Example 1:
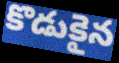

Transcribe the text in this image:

కొడుకైన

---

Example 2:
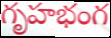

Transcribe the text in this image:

గృహభంగ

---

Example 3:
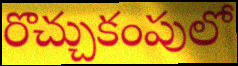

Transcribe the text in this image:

రొచ్చుకంపులో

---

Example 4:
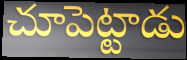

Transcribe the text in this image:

చూపెట్టాడు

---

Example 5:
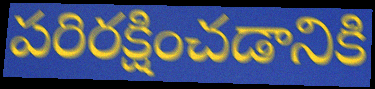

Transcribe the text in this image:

పరిరక్షించడానికి